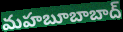
మహబూబాబాద్